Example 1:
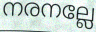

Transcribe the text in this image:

നരനല്ലേ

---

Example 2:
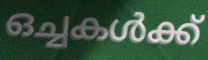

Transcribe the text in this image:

ഒച്ചകൾക്ക്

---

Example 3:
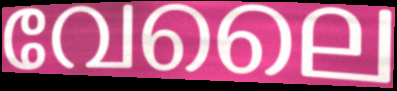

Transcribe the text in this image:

വേലൈ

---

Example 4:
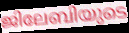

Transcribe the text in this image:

ജിലേബിയുടെ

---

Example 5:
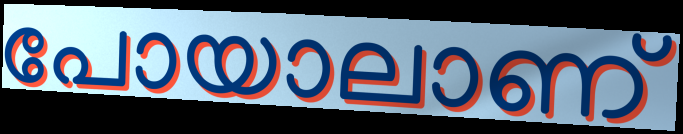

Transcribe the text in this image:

പോയാലാണ്